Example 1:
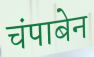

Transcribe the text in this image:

चंपाबेन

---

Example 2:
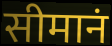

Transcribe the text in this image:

सीमानं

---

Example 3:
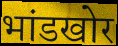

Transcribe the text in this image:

भांडखोर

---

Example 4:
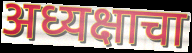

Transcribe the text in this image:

अध्यक्षाचा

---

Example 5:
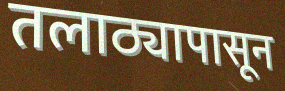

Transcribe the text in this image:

तलाठ्यापासून